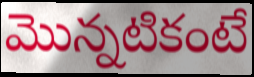
మొన్నటికంటే